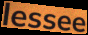
lessee